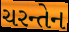
ચરન્તેન